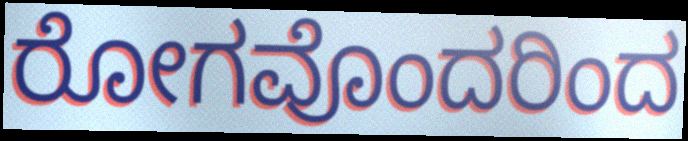
ರೋಗವೊಂದರಿಂದ